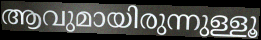
ആവുമായിരുന്നുള്ളൂ